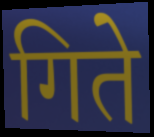
गिते